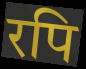
रपि